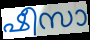
ഷീസാ